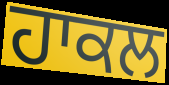
ਹਾਕਲ